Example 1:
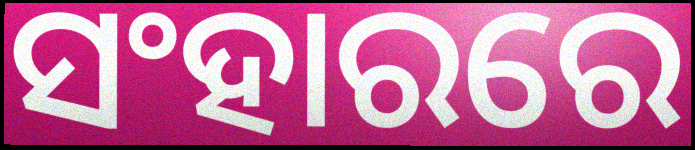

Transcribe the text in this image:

ସଂହାରରେ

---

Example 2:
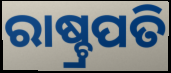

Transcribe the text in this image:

ରାଷ୍ଚ୍ରପତି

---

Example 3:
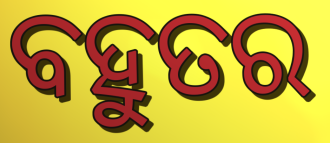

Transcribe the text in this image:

ବହୁତର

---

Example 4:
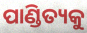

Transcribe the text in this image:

ପାଣ୍ଡିତ୍ୟକୁ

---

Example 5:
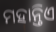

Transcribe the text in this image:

ମହାନ୍ତିଏ